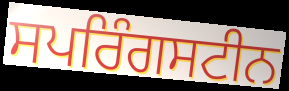
ਸਪਰਿੰਗਸਟੀਨ